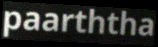
paarththa